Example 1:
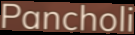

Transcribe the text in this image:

Pancholi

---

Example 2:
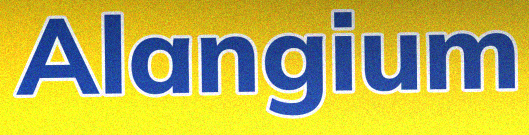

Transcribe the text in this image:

Alangium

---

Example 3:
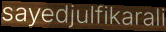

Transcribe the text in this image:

sayedjulfikarali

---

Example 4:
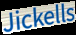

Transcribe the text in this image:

Jickells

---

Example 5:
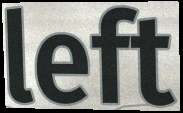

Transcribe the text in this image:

left